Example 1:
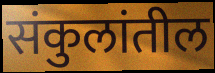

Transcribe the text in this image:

संकुलांतील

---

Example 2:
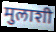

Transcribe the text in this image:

मुलाशी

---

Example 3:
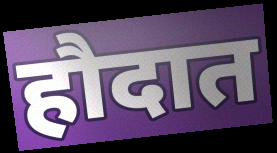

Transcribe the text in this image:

हौदात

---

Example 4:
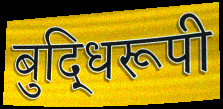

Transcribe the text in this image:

बुद्धिरूपी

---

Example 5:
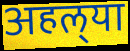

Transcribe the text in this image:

अहल्या